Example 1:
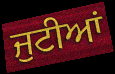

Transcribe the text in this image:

ਜੁਟੀਆਂ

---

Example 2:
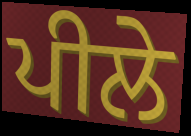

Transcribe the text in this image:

ਪੀਲੇ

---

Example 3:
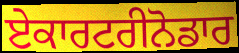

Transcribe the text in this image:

ਏਕਾਰਟਰੀਨੋਡਾਰ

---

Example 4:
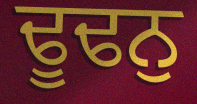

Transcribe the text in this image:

ਢੂਢਨੁ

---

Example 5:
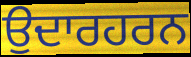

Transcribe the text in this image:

ਉਦਾਰਹਰਨ